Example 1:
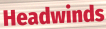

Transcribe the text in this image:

Headwinds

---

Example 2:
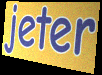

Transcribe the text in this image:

jeter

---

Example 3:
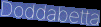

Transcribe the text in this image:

Doddabetta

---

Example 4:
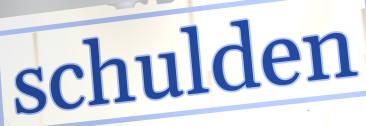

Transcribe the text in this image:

schulden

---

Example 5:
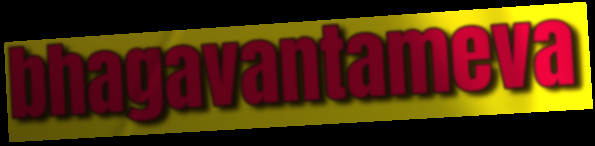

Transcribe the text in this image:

bhagavantameva